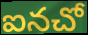
ఐనచో